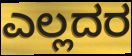
ಎಲ್ಲದರ